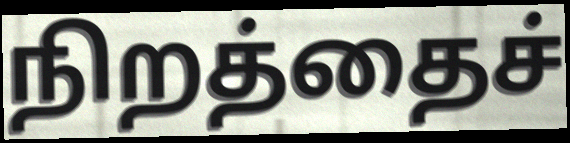
நிறத்தைச்